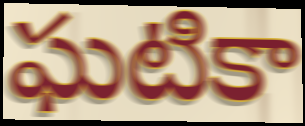
ఘటికా